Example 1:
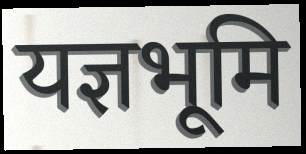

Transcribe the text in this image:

यज्ञभूमि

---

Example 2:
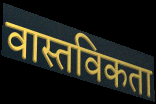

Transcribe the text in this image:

वास्तविकता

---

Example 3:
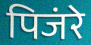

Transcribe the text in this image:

पिजंरे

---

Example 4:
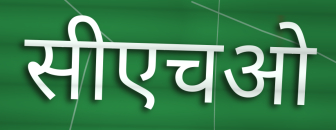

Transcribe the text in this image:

सीएचओ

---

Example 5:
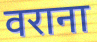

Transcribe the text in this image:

वराना